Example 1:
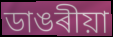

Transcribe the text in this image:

ডাঙৰীয়া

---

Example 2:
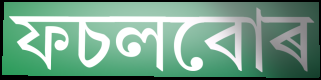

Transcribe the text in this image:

ফচলবোৰ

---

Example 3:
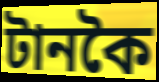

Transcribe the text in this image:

টানকৈ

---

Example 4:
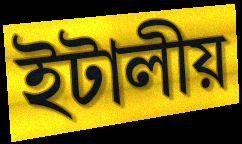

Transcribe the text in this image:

ইটালীয়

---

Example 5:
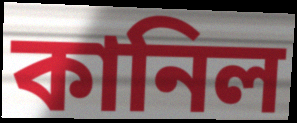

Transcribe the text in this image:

কানিল